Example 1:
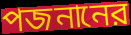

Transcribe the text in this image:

পজনানের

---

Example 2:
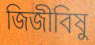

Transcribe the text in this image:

জিজীবিষু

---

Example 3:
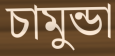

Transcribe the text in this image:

চামুন্ডা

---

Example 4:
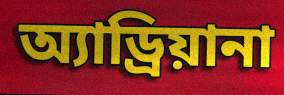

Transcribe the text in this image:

অ্যাড্রিয়ানা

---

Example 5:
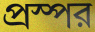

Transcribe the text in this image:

প্রস্পর